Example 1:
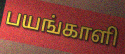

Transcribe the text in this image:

பயங்காளி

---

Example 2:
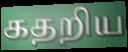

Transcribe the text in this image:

கதறிய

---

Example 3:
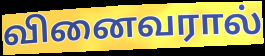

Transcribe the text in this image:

வினைவரால்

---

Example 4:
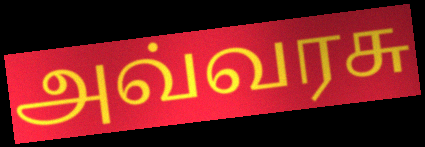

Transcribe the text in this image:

அவ்வரசு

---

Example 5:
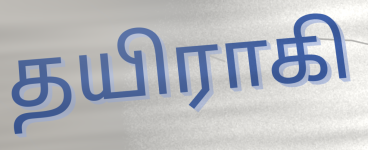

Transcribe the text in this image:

தயிராகி